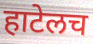
हाटेलच